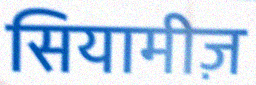
सियामीज़